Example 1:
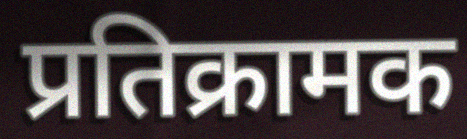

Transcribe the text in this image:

प्रतिक्रामक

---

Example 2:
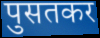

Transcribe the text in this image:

पुसतकर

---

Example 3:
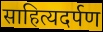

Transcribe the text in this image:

साहित्यदर्पण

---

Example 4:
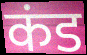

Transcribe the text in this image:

कंड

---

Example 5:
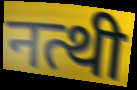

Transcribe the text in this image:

नत्थी